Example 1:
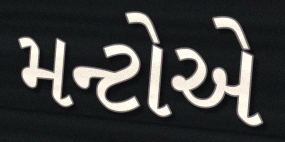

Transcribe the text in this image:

મન્ટોએ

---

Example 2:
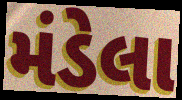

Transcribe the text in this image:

મંડેલા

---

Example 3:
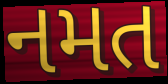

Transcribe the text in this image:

નમત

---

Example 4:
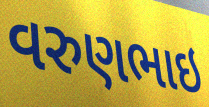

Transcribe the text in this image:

વરુણભાઇ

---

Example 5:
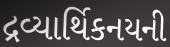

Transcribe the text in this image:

દ્રવ્યાર્થિકનયની